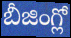
బీజింగ్లో